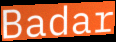
Badar